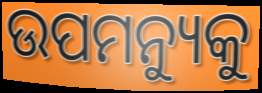
ଉପମନ୍ୟୁକୁ